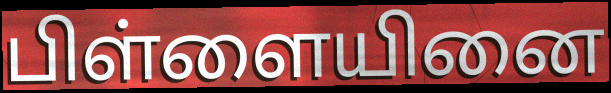
பிள்ளையினை